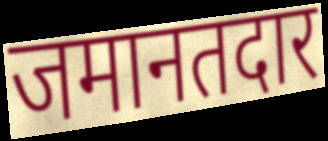
जमानतदार